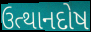
ઉત્થાનદોષ